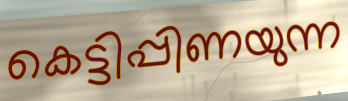
കെട്ടിപ്പിണയുന്ന